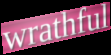
wrathful